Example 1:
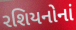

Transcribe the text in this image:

રશિયનોનાં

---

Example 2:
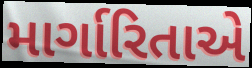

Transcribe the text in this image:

માર્ગારિતાએ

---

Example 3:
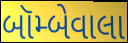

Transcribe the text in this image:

બૉમ્બેવાલા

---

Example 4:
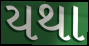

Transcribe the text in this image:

યથા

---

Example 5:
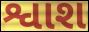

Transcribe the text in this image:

શ્વાશ